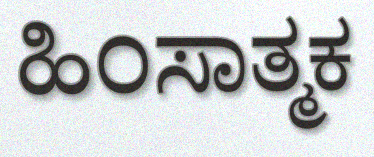
ಹಿಂಸಾತ್ಮಕ